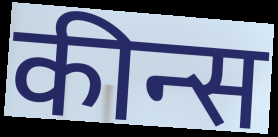
कीन्स